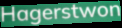
Hagerstwon